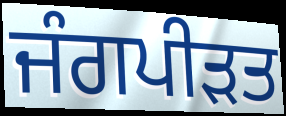
ਜੰਗਪੀੜਤ